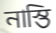
নাস্তি